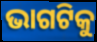
ଭାଗଟିକୁ